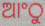
ଆଂଠୁ